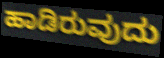
ಹಾಡಿರುವುದು